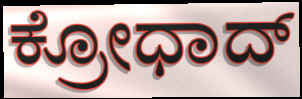
ಕ್ರೋಧಾದ್